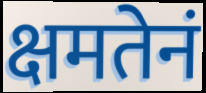
क्षमतेनं